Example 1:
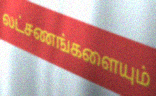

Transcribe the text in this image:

லட்சணங்களையும்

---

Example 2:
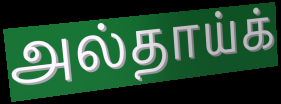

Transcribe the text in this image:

அல்தாய்க்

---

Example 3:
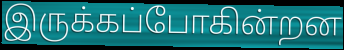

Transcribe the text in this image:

இருக்கப்போகின்றன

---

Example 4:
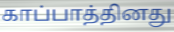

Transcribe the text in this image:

காப்பாத்தினது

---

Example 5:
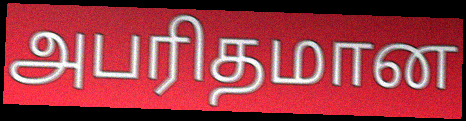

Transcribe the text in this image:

அபரிதமான